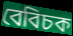
বেবিচক